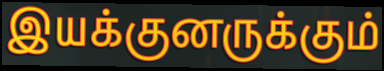
இயக்குனருக்கும்